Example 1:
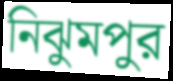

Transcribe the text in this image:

নিঝুমপুর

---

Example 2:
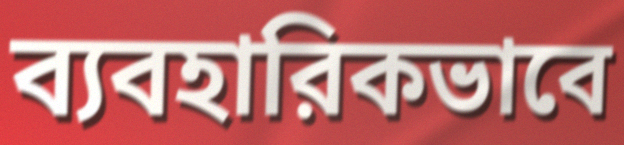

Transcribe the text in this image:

ব্যবহারিকভাবে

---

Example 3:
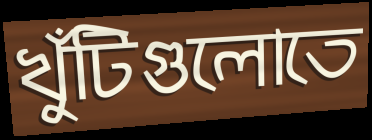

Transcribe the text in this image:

খুঁটিগুলোতে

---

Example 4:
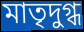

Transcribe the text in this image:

মাতৃদুগ্ধ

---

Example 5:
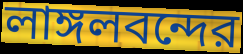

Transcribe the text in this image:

লাঙ্গলবন্দের